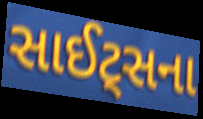
સાઈટ્સના